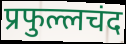
प्रफुल्लचंद